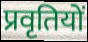
प्रवृतियों